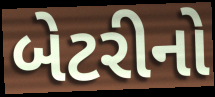
બેટરીનો